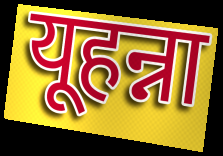
यूहन्ना